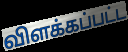
விளக்கப்பட்ட